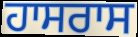
ਹਾਸਰਾਸ